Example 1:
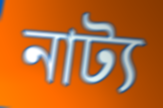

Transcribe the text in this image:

নাট্য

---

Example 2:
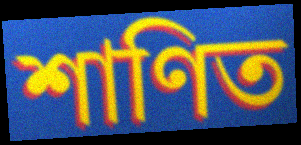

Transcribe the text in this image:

শাণিত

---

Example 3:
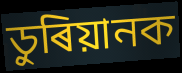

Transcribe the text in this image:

ডুৰিয়ানক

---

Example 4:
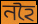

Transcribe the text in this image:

নহৈ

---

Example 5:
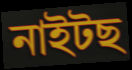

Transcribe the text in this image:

নাইটছ